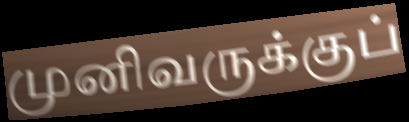
முனிவருக்குப்